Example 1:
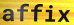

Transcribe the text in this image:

affix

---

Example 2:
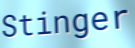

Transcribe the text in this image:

Stinger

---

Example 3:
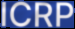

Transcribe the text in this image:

ICRP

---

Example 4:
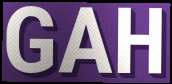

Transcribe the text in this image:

GAH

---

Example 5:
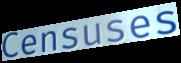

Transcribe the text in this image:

Censuses